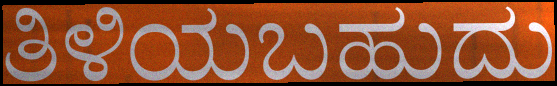
ತಿಳಿಯಬಹುದು